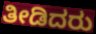
ತೀಡಿದರು